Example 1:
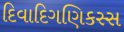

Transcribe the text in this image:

દિવાદિગણિકસ્સ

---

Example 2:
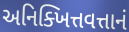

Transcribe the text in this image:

અનિક્ખિત્તવત્તાનં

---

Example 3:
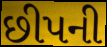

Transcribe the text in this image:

છીપની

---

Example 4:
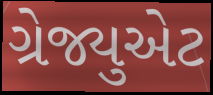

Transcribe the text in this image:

ગ્રેજ્યુએટ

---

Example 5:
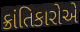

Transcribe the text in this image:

ક્રાંતિકારોએ